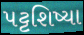
પટ્ટશિષ્યા